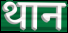
थान